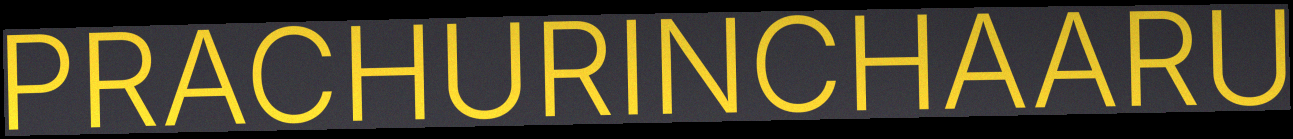
PRACHURINCHAARU